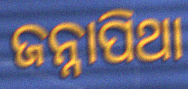
ଜନ୍ନାପିଥା